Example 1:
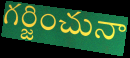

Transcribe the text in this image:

గర్జించునా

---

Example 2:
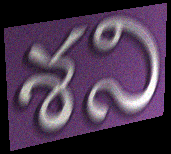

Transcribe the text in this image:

శని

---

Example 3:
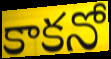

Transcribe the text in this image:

కాకనో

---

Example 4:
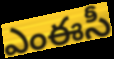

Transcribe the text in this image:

ఎంఈసీ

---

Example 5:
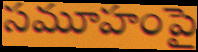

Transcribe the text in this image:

సమూహంపై